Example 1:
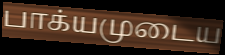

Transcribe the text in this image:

பாக்யமுடைய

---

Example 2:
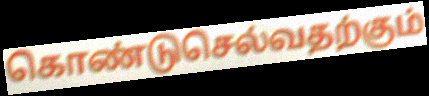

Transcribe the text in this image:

கொண்டுசெல்வதற்கும்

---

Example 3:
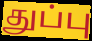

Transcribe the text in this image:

துப்பு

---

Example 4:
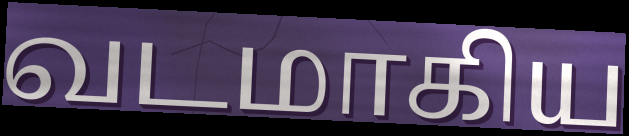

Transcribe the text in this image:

வடமாகிய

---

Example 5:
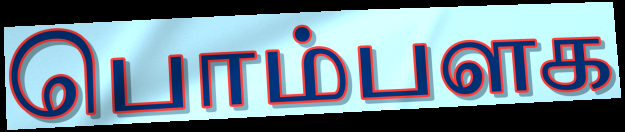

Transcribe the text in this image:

பொம்பளக